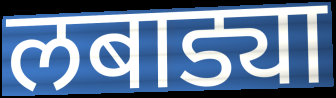
लबाड्या